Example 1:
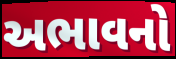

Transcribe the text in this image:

અભાવનો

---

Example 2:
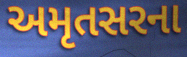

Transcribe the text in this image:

અમૃતસરના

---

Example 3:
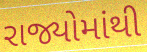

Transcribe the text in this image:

રાજ્યોમાંથી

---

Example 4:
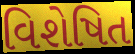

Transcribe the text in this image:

વિશેષિત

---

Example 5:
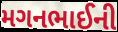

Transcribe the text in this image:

મગનભાઈની